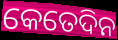
କେତେଦିନ